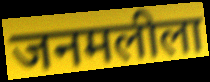
जनमलीला